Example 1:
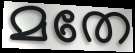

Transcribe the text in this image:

മതേ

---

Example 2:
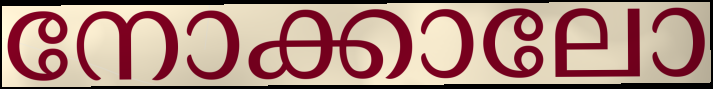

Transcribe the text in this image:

നോക്കാലോ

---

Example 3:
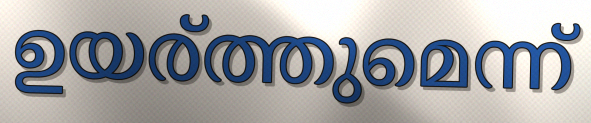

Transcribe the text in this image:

ഉയര്ത്തുമെന്ന്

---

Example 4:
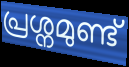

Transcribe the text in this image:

പ്രശ്നമുണ്ട്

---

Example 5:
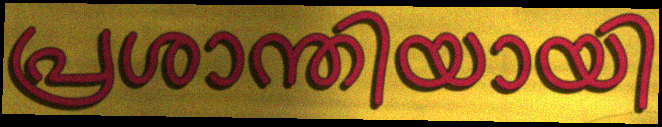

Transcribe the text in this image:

പ്രശാന്തിയായി